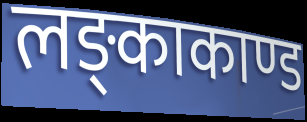
लङ्काकाण्ड